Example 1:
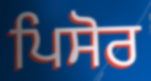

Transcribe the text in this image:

ਪਿਸੋਰ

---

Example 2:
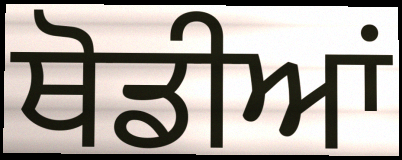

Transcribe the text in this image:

ਥੋਡੀਆਂ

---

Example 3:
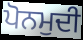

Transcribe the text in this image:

ਪੋਨਮੁਦੀ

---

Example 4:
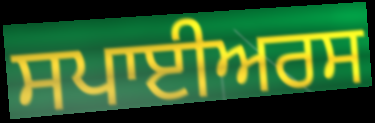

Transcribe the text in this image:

ਸਪਾਈਅਰਸ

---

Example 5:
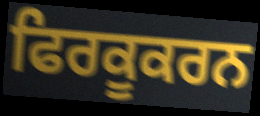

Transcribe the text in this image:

ਫਿਰਕੂਕਰਨ